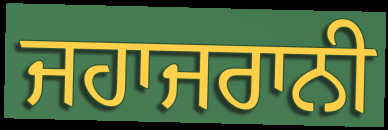
ਜਹਾਜਰਾਨੀ